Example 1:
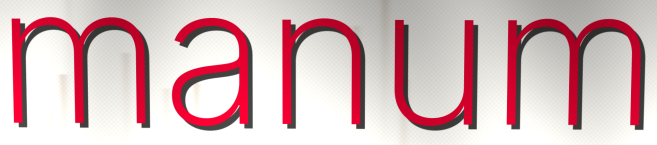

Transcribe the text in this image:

manum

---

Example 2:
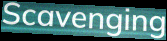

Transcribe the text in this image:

Scavenging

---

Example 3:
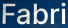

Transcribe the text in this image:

Fabri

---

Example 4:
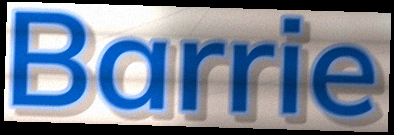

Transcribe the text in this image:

Barrie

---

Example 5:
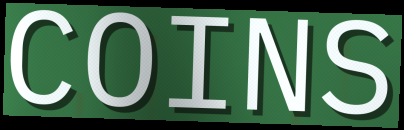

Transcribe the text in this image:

COINS